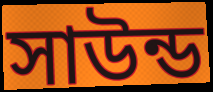
সাউন্ড